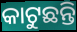
କାଟୁଛନ୍ତି